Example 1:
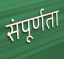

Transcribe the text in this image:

संपूर्णता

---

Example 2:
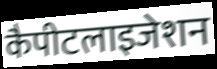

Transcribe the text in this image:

कैपीटलाइजेशन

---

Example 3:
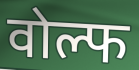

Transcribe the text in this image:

वोल्फ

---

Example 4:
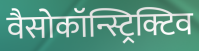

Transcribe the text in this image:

वैसोकॉन्स्ट्रिक्टिव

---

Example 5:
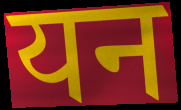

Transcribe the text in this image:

यन